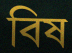
বিষ